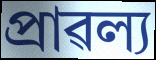
প্ৰাৱল্য